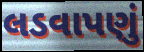
લડવાપણું